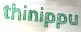
thinippu